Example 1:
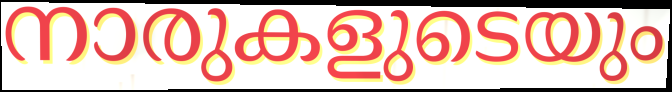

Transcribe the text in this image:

നാരുകളുടെയും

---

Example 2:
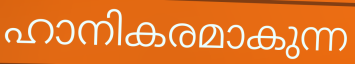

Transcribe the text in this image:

ഹാനികരമാകുന്ന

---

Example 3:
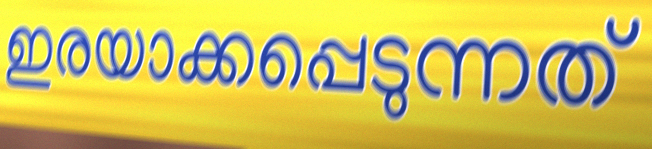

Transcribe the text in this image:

ഇരയാക്കപ്പെടുന്നത്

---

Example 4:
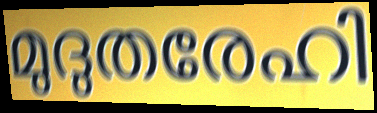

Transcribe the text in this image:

മുദുതരേഹി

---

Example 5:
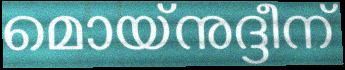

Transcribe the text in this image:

മൊയ്നുദ്ദീന്